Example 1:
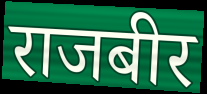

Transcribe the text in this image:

राजबीर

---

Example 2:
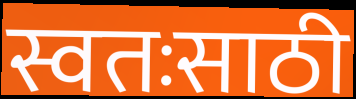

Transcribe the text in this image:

स्वतःसाठी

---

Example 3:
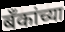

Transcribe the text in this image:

बॅंकांच्या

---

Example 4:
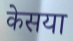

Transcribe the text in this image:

केसया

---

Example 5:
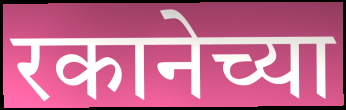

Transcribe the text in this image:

रकानेच्या